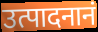
उत्पादनानं